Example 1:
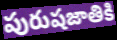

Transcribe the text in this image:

పురుషజాతికి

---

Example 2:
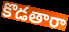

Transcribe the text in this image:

కొడతారా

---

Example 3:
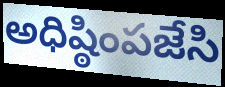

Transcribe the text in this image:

అధిష్ఠింపజేసి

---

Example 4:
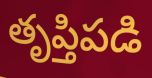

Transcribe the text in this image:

తృప్తిపడి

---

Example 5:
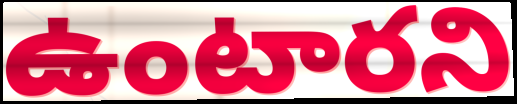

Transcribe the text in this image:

ఉంటారని